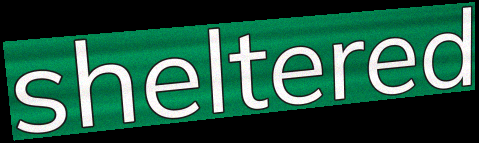
sheltered